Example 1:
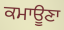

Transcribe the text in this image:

ਕਮਾਊਣਾ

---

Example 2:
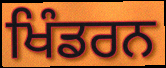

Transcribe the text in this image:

ਖਿੰਡਰਨ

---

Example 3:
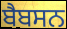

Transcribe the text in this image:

ਬੈਬਸਨ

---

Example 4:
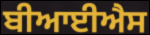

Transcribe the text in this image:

ਬੀਆਈਐਸ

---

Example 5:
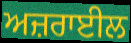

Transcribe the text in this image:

ਅਜ਼ਰਾਈਲ